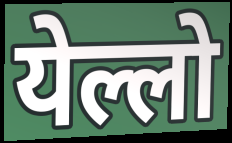
येल्लो